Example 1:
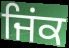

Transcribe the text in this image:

ਜਿਂਕ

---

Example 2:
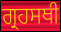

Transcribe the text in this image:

ਗ੍ਰਹਸਥੀ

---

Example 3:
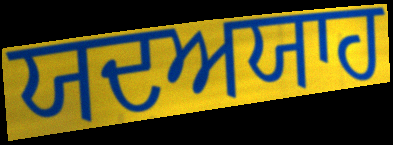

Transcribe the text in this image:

ਯਦਅਯਾਹ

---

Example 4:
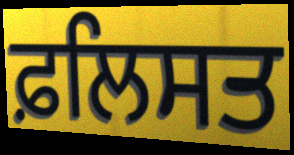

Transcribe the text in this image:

ਫ਼ਲਿਸਤ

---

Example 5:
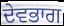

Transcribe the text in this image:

ਦੇਵਭਾਗ